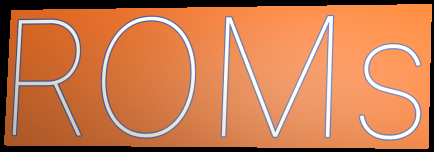
ROMs